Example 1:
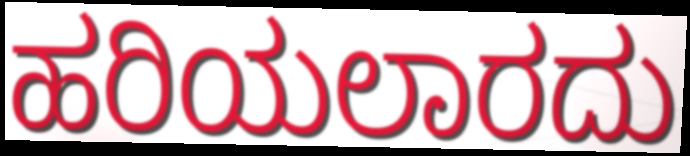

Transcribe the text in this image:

ಹರಿಯಲಾರದು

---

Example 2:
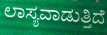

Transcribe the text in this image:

ಲಾಸ್ಯವಾಡುತ್ತಿದೆ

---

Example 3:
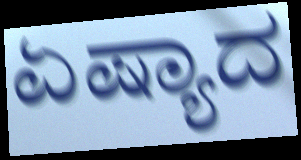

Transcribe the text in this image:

ಏಷ್ಯಾದ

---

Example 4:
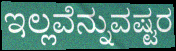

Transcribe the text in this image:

ಇಲ್ಲವೆನ್ನುವಷ್ಟರ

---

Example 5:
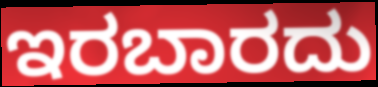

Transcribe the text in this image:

ಇರಬಾರದು